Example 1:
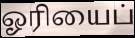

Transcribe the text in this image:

ஓரியைப்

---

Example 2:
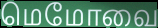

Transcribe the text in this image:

மெமோவை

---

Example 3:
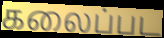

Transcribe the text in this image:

கலைப்பட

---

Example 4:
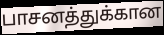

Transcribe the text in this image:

பாசனத்துக்கான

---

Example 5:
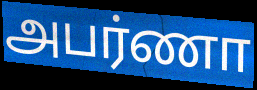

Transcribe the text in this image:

அபர்ணா